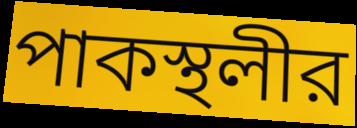
পাকস্থলীর